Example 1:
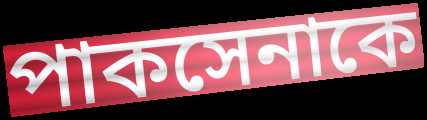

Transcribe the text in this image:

পাকসেনাকে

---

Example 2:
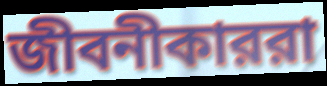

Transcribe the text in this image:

জীবনীকাররা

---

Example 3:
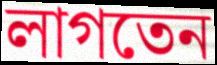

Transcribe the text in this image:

লাগতেন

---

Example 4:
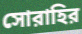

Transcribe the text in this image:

সোরাহির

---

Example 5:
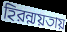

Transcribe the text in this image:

হিরন্ময়তায়